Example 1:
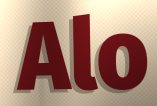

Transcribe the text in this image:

Alo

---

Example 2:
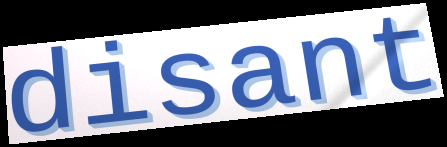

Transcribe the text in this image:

disant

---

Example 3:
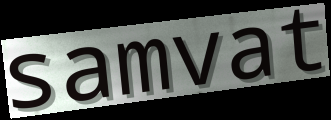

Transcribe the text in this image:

samvat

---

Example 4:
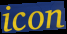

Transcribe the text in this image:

icon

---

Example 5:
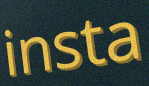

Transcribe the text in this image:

insta